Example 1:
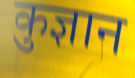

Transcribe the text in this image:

कुज्ञान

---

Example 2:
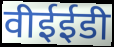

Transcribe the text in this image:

वीईईडी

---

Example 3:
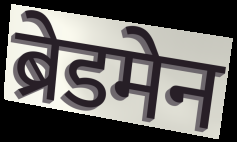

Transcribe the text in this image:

ब्रेडमेन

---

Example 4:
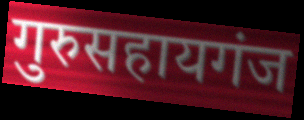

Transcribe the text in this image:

गुरुसहायगंज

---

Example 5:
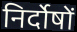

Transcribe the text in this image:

निर्दोषों